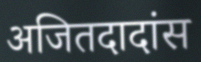
अजितदादांस